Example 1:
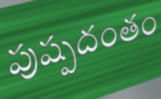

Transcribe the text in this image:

పుష్పదంతం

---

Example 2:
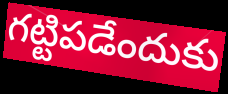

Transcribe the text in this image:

గట్టిపడేందుకు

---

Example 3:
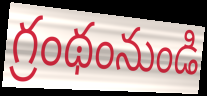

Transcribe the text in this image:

గ్రంథంనుండి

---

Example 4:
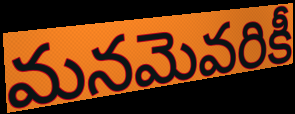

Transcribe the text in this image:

మనమెవరికీ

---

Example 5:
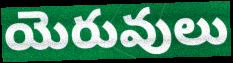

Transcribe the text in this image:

యెరువులు